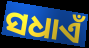
ସଧାଏଁ